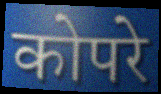
कोपरे